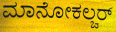
ಮಾನೋಕಲ್ಚರ್